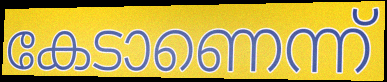
കേടാണെന്ന്